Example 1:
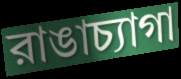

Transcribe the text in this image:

রাঙাচ্যাগা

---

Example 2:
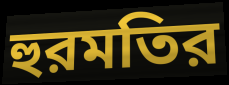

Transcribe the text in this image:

হুরমতির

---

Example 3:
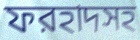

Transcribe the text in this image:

ফরহাদসহ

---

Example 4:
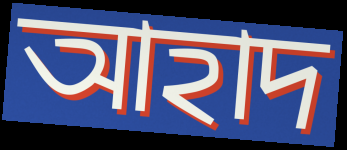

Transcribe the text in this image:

আহাদ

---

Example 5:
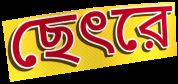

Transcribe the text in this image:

ছেৎরে